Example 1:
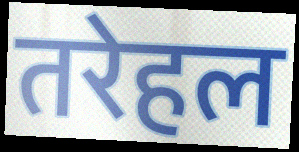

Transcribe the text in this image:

तरेहल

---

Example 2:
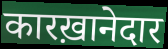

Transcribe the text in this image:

कारख़ानेदार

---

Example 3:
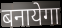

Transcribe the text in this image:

बनायेगा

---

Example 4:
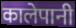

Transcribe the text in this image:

कालेपानी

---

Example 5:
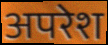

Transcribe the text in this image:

अपरेश